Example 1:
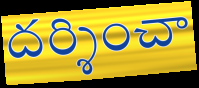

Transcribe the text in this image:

దర్శించా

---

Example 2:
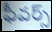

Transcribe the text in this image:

ఫీవర్స్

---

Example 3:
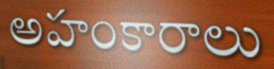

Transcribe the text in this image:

అహంకారాలు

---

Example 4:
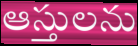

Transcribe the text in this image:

ఆస్తులను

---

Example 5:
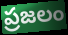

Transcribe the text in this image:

ప్రజలం